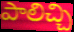
పాలిచ్చి